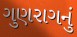
ગુણરાગનું